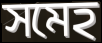
সমেহ